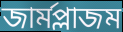
জার্মপ্লাজম